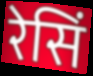
रेसिं